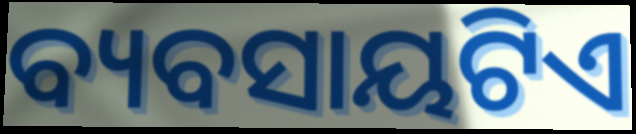
ବ୍ୟବସାୟଟିଏ